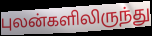
புலன்களிலிருந்து